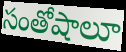
సంతోషాలూ